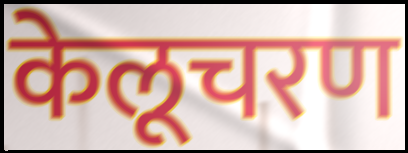
केलूचरण